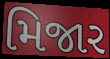
મિજાર